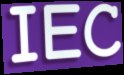
IEC